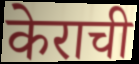
केराची